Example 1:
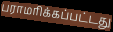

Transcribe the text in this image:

பராமரிக்கப்பட்டது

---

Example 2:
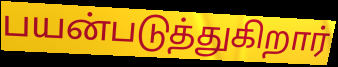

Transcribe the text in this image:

பயன்படுத்துகிறார்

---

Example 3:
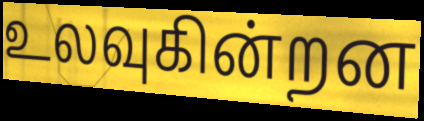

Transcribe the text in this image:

உலவுகின்றன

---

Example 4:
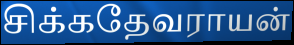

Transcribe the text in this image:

சிக்கதேவராயன்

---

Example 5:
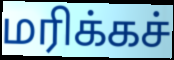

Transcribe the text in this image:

மரிக்கச்